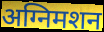
अग्निमशन